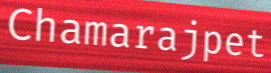
Chamarajpet